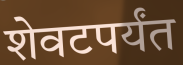
शेवटपर्यंत